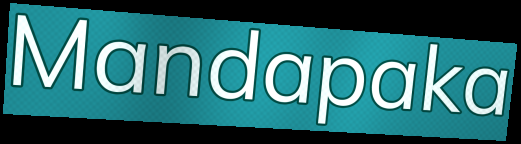
Mandapaka